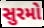
સુરમો